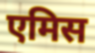
एमिस